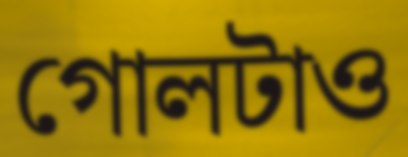
গোলটাও